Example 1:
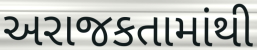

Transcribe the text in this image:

અરાજકતામાંથી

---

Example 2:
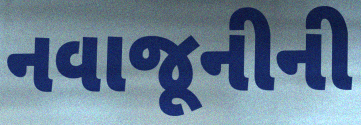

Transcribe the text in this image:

નવાજૂનીની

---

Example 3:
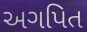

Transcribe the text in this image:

અગપિત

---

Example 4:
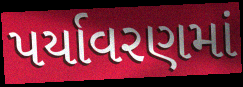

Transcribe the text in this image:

પર્યાવરણમાં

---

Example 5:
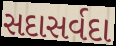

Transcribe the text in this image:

સદાસર્વદા